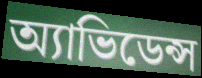
অ্যাভিডেন্স